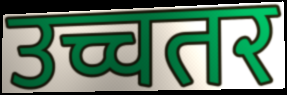
उच्चतर